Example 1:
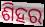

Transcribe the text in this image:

ଶିହର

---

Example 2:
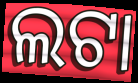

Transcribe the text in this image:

ଲଟା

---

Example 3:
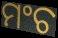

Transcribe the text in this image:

ମଂଚ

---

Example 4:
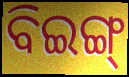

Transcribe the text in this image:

ବିଇଙ୍ଗ୍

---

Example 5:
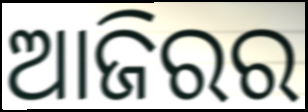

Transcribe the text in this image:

ଆଜିରର